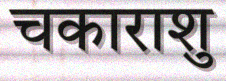
चकाराशु